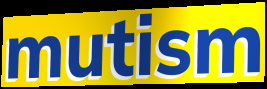
mutism